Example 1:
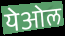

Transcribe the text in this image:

येओल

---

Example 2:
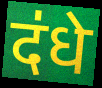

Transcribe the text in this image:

द॑धे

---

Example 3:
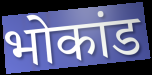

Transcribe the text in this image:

भोकांड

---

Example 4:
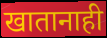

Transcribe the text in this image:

खातानाही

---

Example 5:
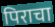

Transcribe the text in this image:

पिराचा